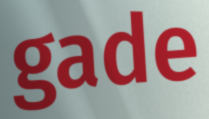
gade